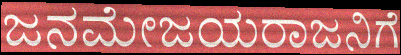
ಜನಮೇಜಯರಾಜನಿಗೆ